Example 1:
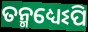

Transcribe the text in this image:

ତନ୍ମଧ୍ୟେଽପି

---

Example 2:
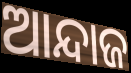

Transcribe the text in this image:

ଆନ୍ଦାଜ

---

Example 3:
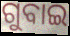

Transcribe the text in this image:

ଗୁବାଇ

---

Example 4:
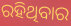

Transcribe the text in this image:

ରହିଥିବାର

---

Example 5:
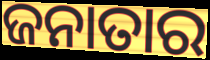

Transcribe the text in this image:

ଜନାତାର